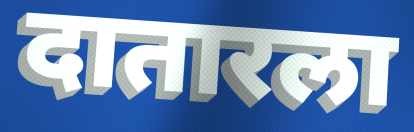
दातारला